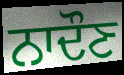
ਨਾਦੌਣ